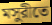
মসুরীতে